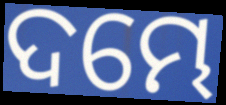
ଦମ୍ଭେ